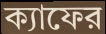
ক্যাফের